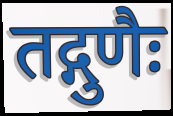
तद्गुणैः